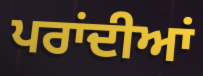
ਪਰਾਂਦੀਆਂ